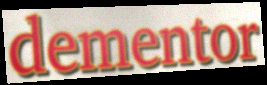
dementor